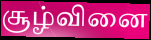
சூழ்வினை